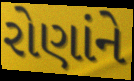
રોણાંને